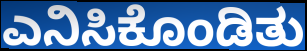
ಎನಿಸಿಕೊಂಡಿತು